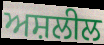
ਅਸ਼ਲੀਲ